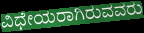
ವಿಧೇಯರಾಗಿರುವವರು